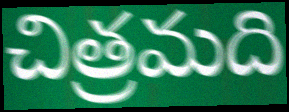
చిత్రమది